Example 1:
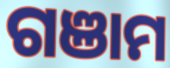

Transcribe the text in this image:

ଗଞାମ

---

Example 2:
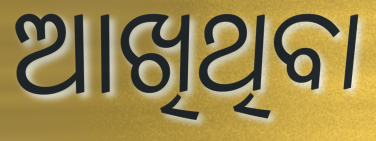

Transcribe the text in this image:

ଆଖିଥିବା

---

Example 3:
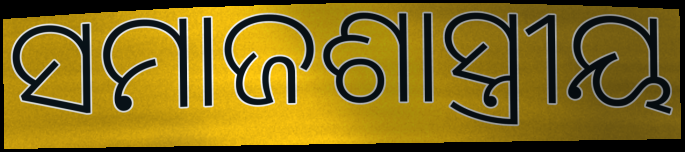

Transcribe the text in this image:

ସମାଜଶାସ୍ତ୍ରୀୟ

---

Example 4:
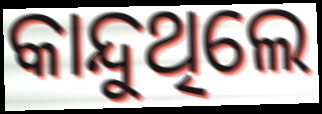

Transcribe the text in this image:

କାନ୍ଦୁଥିଲେ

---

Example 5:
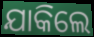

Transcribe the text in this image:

ଯାକିଲେ